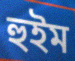
হুইম